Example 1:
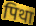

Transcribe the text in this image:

पिथा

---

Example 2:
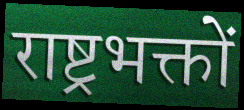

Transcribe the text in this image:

राष्ट्रभक्तों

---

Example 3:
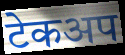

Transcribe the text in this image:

टेकअप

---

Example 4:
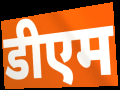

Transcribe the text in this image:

डीएम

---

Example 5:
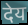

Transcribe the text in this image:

देय